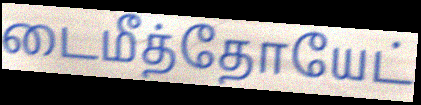
டைமீத்தோயேட்